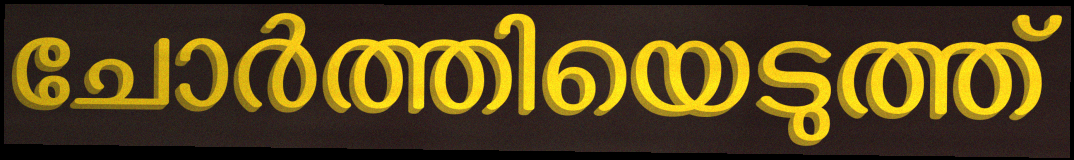
ചോർത്തിയെടുത്ത്